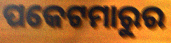
ପକେଟମାରୁର